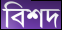
বিশদ